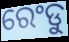
ରେଂଡୁ